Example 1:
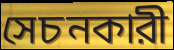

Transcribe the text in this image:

সেচনকারী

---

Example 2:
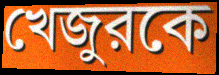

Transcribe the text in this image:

খেজুরকে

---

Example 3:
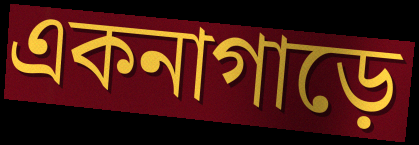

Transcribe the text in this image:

একনাগাড়ে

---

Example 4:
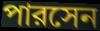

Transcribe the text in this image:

পারসেন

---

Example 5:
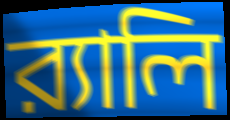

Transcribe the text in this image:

র‍্যালি